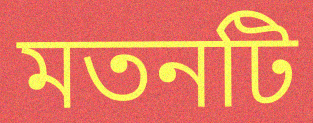
মতনটি